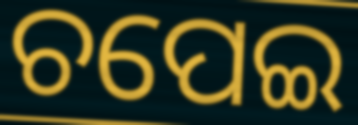
ଚପେଇ